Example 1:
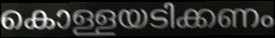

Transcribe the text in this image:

കൊള്ളയടിക്കണം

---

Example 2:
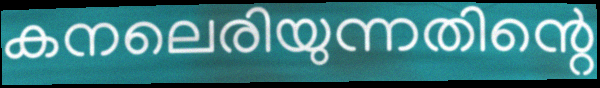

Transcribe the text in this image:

കനലെരിയുന്നതിന്റെ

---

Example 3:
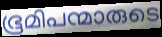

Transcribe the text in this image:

ഭൂമിപന്മാരുടെ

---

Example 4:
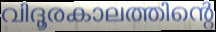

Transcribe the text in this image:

വിദൂരകാലത്തിന്റെ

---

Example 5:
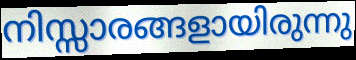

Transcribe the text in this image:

നിസ്സാരങ്ങളായിരുന്നു